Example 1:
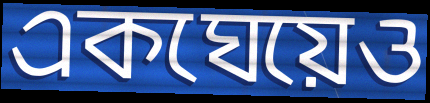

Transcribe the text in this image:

একঘেয়েও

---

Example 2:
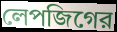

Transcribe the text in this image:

লেপজিগের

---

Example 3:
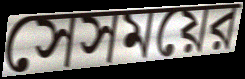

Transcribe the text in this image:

সেসময়ের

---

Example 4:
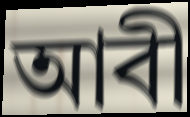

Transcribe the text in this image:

আবী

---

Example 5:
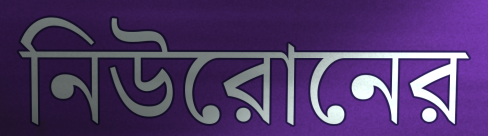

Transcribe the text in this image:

নিউরোনের